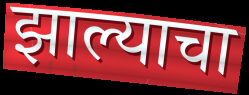
झाल्‍याचा